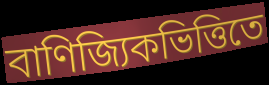
বাণিজ্যিকভিত্তিতে